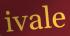
ivale